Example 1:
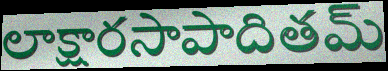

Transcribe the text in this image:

లాక్షారసాపాదితమ్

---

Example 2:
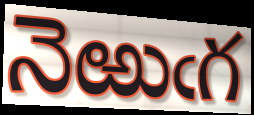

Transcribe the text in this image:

నెఱుఁగ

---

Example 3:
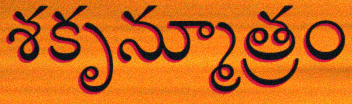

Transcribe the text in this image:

శకృన్మూత్రం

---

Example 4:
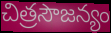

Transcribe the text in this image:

చిత్రసౌజన్యం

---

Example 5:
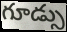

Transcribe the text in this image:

గూడ్సు